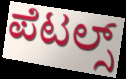
ಪೆಟಲ್ಸ್